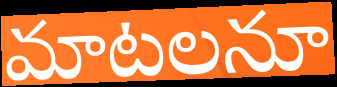
మాటలనూ